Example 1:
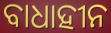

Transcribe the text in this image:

ବାଧାହୀନ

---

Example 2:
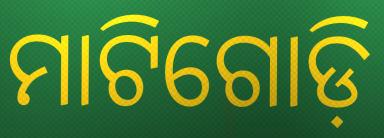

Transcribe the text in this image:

ମାଟିଗୋଡ଼ି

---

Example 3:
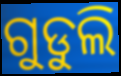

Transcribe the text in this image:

ଗୁଡୁଲି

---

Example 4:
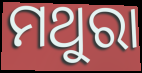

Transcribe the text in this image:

ମଥୁରା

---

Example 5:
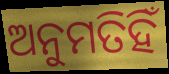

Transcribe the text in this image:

ଅନୁମତିହିଁ